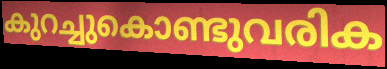
കുറച്ചുകൊണ്ടുവരിക